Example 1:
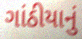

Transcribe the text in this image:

ગાંઠીયાનું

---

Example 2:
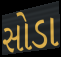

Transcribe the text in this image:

સોડા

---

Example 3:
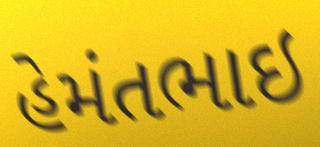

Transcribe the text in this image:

હેમંતભાઇ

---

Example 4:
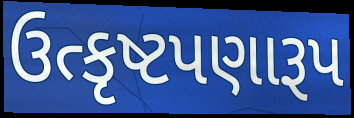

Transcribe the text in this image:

ઉત્કૃષ્ટપણારૂપ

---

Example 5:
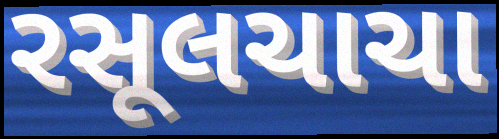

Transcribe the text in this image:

રસૂલચાચા